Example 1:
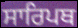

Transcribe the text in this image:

ਸਾਰਿਪਥ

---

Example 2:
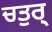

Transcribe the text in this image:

ਚਤੁਰ੍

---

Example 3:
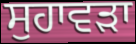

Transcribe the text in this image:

ਸੁਹਾਵੜਾ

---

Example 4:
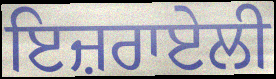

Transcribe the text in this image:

ਇਜ਼ਰਾਏਲੀ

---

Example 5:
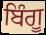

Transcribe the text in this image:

ਬਿੰਗੂ